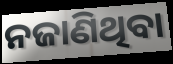
ନଜାଣିଥିବା